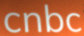
cnbc